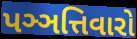
પઞ્ઞત્તિવારો